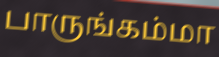
பாருங்கம்மா